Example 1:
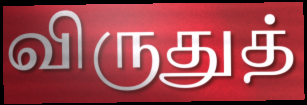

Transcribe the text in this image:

விருதுத்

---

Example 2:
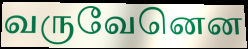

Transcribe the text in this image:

வருவேனென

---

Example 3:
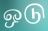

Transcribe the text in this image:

ஒடு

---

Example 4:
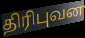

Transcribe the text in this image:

திரிபுவன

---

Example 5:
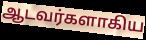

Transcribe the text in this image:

ஆடவர்களாகிய